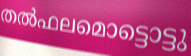
തൽഫലമൊട്ടൊട്ടു